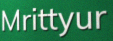
Mrittyur